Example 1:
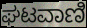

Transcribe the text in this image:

ಘಟವಾಣಿ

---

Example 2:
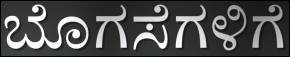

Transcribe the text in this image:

ಬೊಗಸೆಗಳಿಗೆ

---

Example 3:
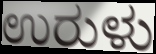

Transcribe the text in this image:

ಉರುಳು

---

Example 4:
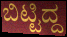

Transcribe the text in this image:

ಬಿಟ್ಟಿದ್ದ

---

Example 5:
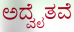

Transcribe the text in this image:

ಅದ್ವೈತವೆ